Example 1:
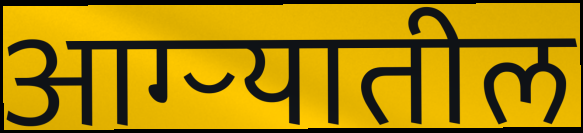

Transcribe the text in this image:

आग्ऱ्यातील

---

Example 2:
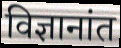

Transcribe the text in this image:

विज्ञानांत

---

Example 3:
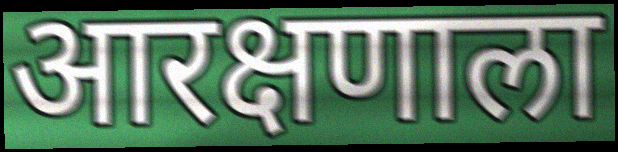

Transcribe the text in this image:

आरक्षणाला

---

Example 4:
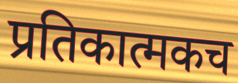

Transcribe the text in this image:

प्रतिकात्मकच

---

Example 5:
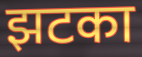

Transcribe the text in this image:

झटका